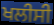
ਖਲੀਸੀ